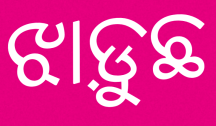
ଝାଡ଼ୁଛ